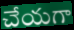
చేయగా